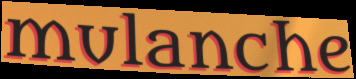
mulanche